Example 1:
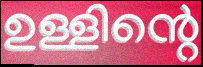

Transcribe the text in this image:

ഉള്ളിന്റെ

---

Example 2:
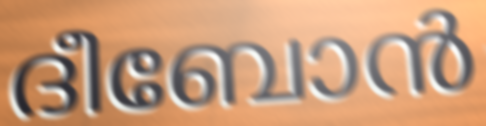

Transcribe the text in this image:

ദീബോൻ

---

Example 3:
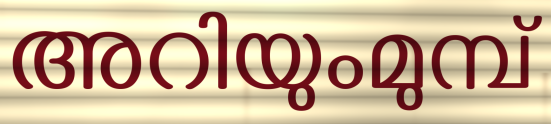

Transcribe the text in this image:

അറിയുംമുമ്പ്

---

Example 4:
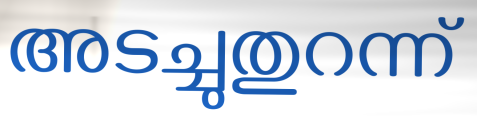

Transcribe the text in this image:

അടച്ചുതുറന്ന്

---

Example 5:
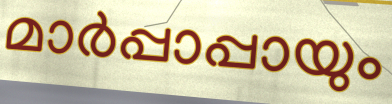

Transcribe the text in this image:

മാർപ്പാപ്പായും